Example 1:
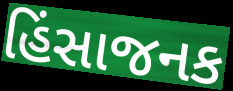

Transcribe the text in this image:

હિંસાજનક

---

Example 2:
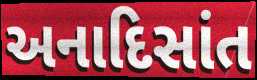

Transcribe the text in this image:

અનાદિસાંત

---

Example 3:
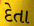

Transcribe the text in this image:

દેતા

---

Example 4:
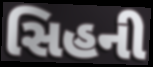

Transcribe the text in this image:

સિહની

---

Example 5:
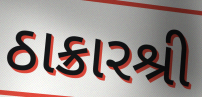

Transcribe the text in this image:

ઠાક્રારશ્રી